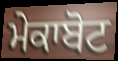
ਮੇਕਾਬੋਟ